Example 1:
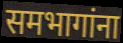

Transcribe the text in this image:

समभागांना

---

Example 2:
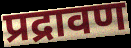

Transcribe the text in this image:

प्रद्रावण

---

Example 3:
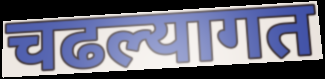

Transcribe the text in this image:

चढल्यागत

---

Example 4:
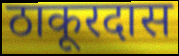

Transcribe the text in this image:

ठाकूरदास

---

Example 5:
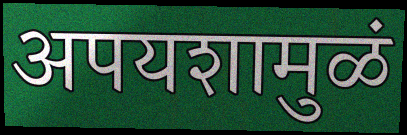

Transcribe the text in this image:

अपयशामुळं